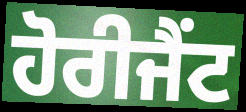
ਹੋਰੀਜੈਂਟ